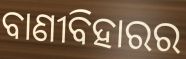
ବାଣୀବିହାରର